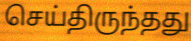
செய்திருந்தது